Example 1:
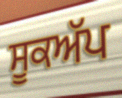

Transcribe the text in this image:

ਸੂਕਅੱਪ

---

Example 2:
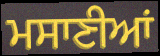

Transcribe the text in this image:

ਮਸਾਣੀਆਂ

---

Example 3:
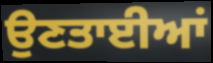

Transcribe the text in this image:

ਉਣਤਾਈਆਂ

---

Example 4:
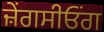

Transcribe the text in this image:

ਜ਼ੇਂਗਸੀਓਂਗ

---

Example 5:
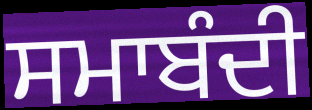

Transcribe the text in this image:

ਸਮਾਬੰਦੀ